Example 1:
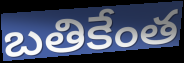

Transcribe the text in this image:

బతికేంత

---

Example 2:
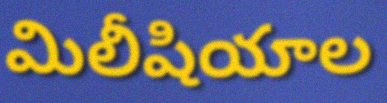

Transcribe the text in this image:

మిలీషియాల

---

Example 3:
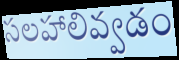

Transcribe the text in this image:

సలహాలివ్వడం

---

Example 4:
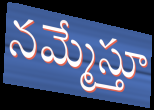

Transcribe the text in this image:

నమ్మేస్తూ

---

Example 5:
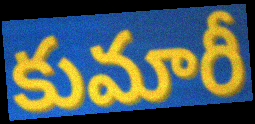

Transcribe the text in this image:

కుమారీ